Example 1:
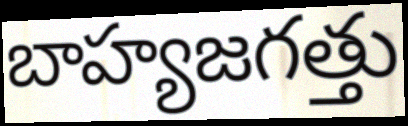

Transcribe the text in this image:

బాహ్యజగత్తు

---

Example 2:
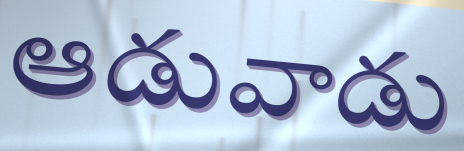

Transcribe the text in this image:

ఆడువాడు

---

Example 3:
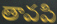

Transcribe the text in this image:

తావపి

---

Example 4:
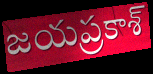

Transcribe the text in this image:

జయప్రకాశ్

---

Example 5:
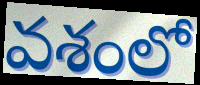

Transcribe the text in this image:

వశంలో